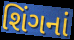
શિંગનાં